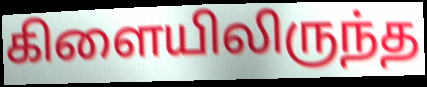
கிளையிலிருந்த